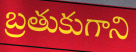
బ్రతుకుగాని